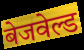
बेजवेल्ड